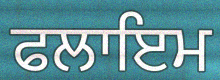
ਫਲਾਇਮ